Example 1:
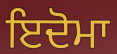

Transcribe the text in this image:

ਇਦੋਮਾ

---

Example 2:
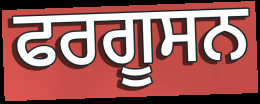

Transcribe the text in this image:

ਫਰਗੂਸਨ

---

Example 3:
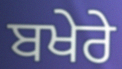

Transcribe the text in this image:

ਬਖੇਰੇ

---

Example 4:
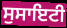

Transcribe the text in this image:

ਸੁਸਾਇਟੀ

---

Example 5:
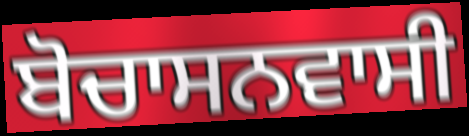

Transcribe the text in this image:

ਬੋਚਾਸਨਵਾਸੀ